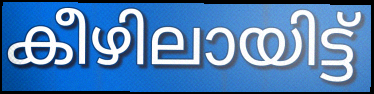
കീഴിലായിട്ട്